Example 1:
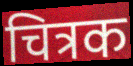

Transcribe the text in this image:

चित्रक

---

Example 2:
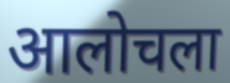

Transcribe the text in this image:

आलोचला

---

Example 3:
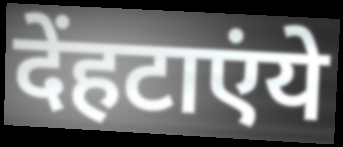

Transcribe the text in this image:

देंहटाएंये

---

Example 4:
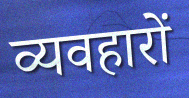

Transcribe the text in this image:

व्यवहारों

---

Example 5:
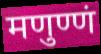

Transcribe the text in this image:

मणुण्णं